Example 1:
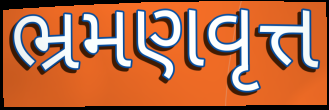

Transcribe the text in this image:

ભ્રમણવૃત્ત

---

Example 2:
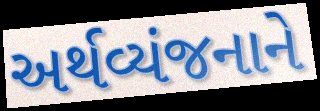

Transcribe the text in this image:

અર્થવ્યંજનાને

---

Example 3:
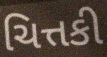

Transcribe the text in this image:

ચિત્તકી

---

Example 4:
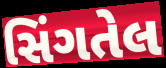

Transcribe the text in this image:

સિંગતેલ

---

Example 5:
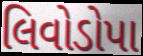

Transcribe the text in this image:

લિવોડોપા